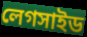
লেগসাইড